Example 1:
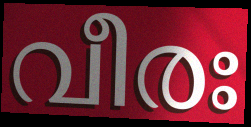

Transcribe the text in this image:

വീരഃ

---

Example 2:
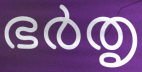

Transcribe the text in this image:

ഭർതൃ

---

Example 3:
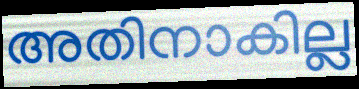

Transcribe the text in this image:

അതിനാകില്ല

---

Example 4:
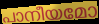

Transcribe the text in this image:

പാനീയമോ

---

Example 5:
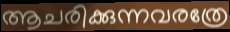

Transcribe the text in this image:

ആചരിക്കുന്നവരത്രേ